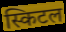
स्किटल